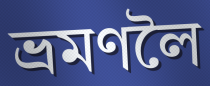
ভ্ৰমণলৈ